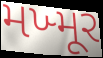
મખ્મૂર